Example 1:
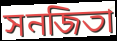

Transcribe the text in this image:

সনজিতা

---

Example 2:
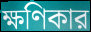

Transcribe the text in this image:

ক্ষণিকার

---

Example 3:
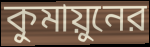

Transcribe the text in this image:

কুমায়ুনের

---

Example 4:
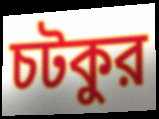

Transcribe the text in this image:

চটকুর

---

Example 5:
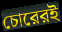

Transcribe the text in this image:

চোরেরই